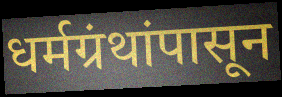
धर्मग्रंथांपासून